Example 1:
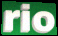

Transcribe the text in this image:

rio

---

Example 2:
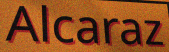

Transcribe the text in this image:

Alcaraz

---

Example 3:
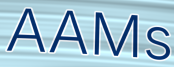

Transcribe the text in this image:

AAMs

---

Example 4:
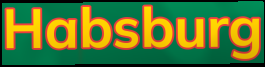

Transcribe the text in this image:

Habsburg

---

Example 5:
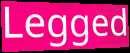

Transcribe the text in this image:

Legged